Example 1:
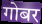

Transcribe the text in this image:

गोबर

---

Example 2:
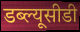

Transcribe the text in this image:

डब्ल्यूसीडी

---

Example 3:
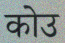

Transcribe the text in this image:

कोउ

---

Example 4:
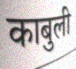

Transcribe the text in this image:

काबुली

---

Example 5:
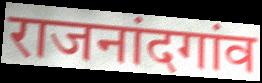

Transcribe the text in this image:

राजनांदगांव